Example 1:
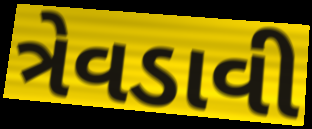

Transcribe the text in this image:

ત્રેવડાવી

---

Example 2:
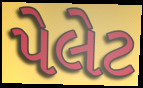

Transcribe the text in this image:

પેલેટ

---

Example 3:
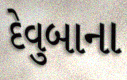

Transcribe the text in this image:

દેવુબાના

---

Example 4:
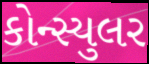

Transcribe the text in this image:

કોન્સ્યુલર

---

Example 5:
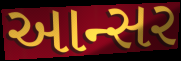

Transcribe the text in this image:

આન્સર